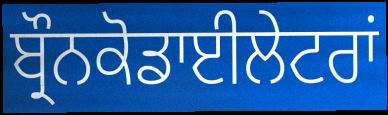
ਬ੍ਰੌਨਕੋਡਾਈਲੇਟਰਾਂ